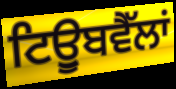
ਟਿਊੁਬਵੈੱਲਾਂ